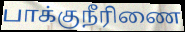
பாக்குநீரிணை